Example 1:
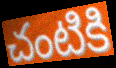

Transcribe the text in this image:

చంటికి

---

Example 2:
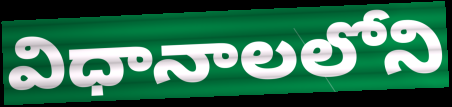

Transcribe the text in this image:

విధానాలలోని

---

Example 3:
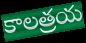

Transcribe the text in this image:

కాలత్రయ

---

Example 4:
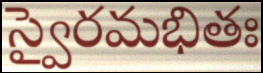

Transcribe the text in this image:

స్వైరమభితః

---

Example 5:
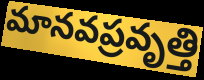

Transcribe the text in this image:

మానవప్రవృత్తి